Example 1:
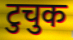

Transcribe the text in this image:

टुचुक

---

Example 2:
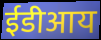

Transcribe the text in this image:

ईडीआय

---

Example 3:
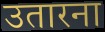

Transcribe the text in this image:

उतारना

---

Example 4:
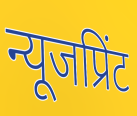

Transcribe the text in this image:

न्यूजप्रिंट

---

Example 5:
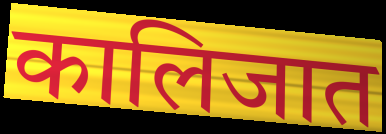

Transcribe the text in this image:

कालिजात